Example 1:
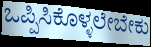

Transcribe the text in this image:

ಒಪ್ಪಿಸಿಕೊಳ್ಳಲೇಬೇಕು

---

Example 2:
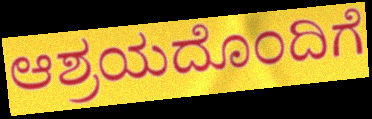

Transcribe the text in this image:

ಆಶ್ರಯದೊಂದಿಗೆ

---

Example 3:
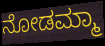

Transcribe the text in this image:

ನೋಡಮ್ಮಾ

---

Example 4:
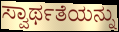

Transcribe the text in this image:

ಸ್ವಾರ್ಥತೆಯನ್ನು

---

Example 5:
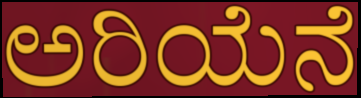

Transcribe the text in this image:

ಅರಿಯೆನೆ